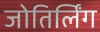
जोतिर्लिंग